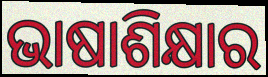
ଭାଷାଶିକ୍ଷାର